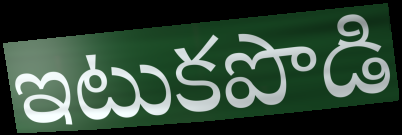
ఇటుకపొడి